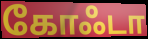
கோஃடா